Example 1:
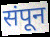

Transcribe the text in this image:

संपून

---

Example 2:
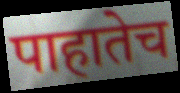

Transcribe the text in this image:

पाहातेच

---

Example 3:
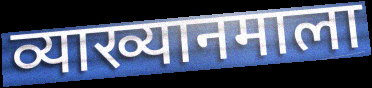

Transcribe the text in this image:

व्याख्यानमाला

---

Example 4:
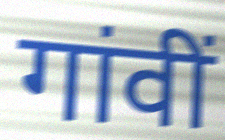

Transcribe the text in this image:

गांवीं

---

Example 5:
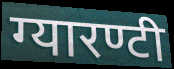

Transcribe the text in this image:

ग्यारण्टी